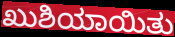
ಖುಶಿಯಾಯಿತು